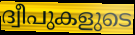
ദ്വീപുകളുടെ